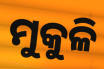
ମୁକୁଳି